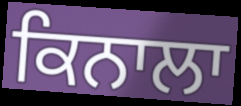
ਕਿਨਾਲਾ